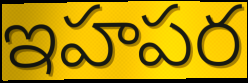
ఇహపర